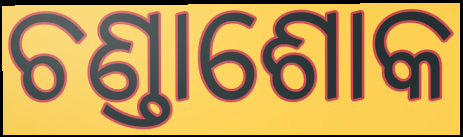
ଚଣ୍ଡାଶୋକ